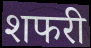
शफरी